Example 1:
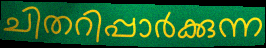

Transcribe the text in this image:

ചിതറിപ്പാർക്കുന്ന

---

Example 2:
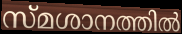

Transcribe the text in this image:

സ്മശാനത്തിൽ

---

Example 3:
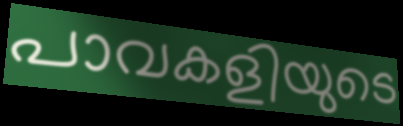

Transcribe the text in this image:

പാവകളിയുടെ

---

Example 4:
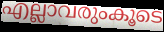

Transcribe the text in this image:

എല്ലാവരുംകൂടെ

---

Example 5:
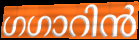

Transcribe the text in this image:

ഗഗാറിൻ